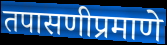
तपासणीप्रमाणे